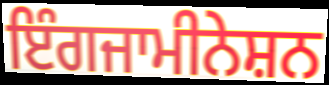
ਇੰਗਜਾਮੀਨੇਸ਼ਨ